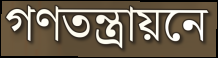
গণতন্ত্রায়নে